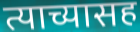
त्याच्यासह